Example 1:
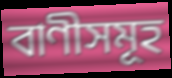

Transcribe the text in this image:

বাণীসমূহ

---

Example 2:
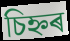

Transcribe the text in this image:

চিহ্নৰ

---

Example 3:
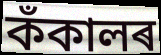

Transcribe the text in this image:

কঁকালৰ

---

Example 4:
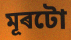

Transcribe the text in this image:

মূৰটো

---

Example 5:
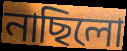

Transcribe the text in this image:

নাছিলো